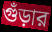
গুঁড়ার